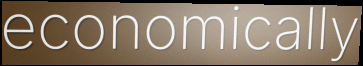
economically